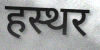
हस्थर